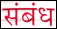
संबंध